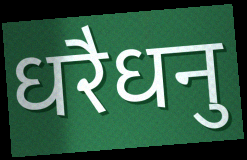
धरैधनु